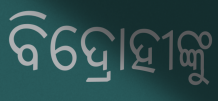
ବିଦ୍ରୋହୀଙ୍କୁ